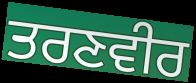
ਤਰਣਵੀਰ